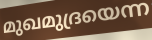
മുഖമുദ്രയെന്ന